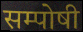
सम्पोषी